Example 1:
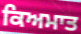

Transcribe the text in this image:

ਕਿਅਮਾਤ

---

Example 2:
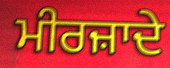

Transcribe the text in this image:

ਮੀਰਜ਼ਾਦੇ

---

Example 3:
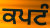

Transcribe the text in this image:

ਕਪਟੰ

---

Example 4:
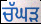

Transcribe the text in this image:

ਚੱਘੜ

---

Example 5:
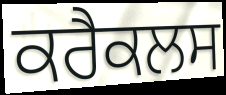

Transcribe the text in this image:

ਕਰੈਕਲਸ